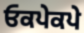
ਓਕਪੇਕਪੇ